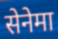
सेनेमा